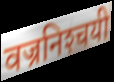
वज्रनिश्चयी